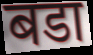
बडा